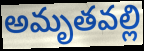
అమృతవల్లి